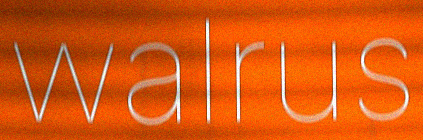
walrus